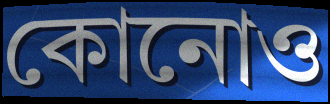
কোনোও